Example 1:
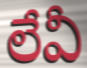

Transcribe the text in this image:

లేవీ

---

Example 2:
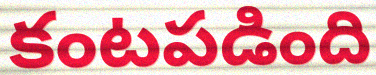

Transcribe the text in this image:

కంటపడింది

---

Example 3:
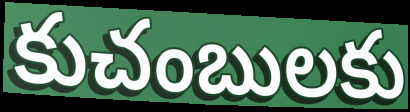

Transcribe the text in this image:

కుచంబులకు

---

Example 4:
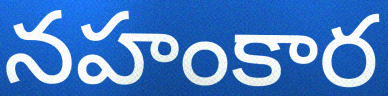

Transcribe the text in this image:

నహంకార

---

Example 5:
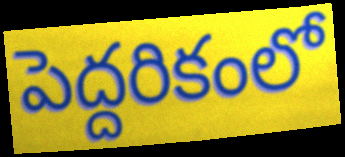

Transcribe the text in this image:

పెద్దరికంలో